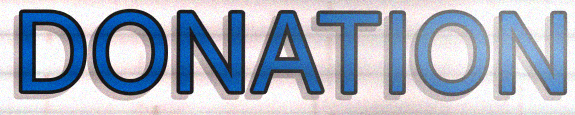
DONATION